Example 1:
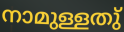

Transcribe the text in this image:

നാമുള്ളതു്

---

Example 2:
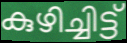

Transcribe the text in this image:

കുഴിച്ചിട്ട്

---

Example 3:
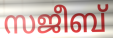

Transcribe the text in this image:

സജീബ്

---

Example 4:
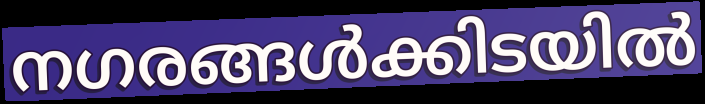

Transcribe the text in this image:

നഗരങ്ങൾക്കിടയിൽ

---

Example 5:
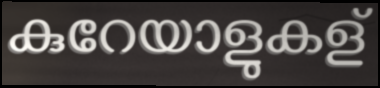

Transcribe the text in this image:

കുറേയാളുകള്